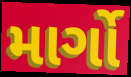
માર્ગો